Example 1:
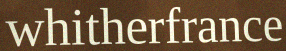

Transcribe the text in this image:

whitherfrance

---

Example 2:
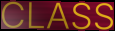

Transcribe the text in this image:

CLASS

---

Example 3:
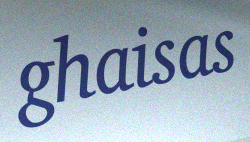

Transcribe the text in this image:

ghaisas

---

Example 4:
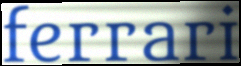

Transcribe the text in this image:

ferrari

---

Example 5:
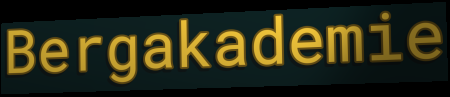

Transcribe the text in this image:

Bergakademie